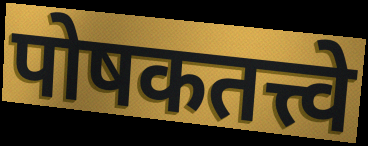
पोषकतत्त्वे